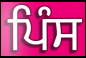
ਪਿੰਸ